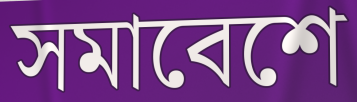
সমাবেশে